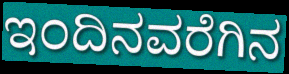
ಇಂದಿನವರೆಗಿನ